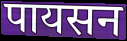
पायसन